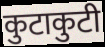
कुटाकुटी